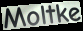
Moltke